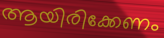
ആയിരിക്കേണം